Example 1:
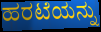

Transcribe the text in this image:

ಹರಟೆಯನ್ನು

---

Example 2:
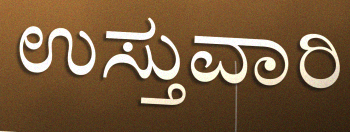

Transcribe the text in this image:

ಉಸ್ತುವಾರಿ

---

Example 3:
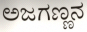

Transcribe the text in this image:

ಅಜಗಣ್ಣನ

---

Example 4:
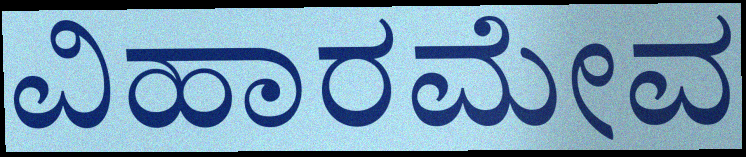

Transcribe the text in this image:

ವಿಹಾರಮೇವ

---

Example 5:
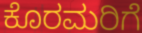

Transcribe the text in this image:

ಕೊರಮರಿಗೆ